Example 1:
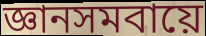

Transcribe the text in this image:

জ্ঞানসমবায়ে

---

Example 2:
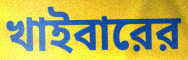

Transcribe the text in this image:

খাইবারের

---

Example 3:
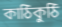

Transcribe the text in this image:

কাঠিকুঠি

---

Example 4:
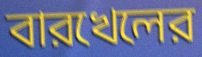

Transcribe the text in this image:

বারখেলের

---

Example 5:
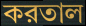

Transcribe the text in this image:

করতাল